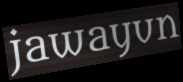
jawayun